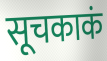
सूचकाकं